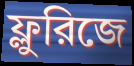
ফ্লুরিজে